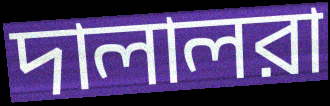
দালালরা